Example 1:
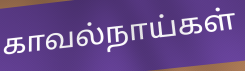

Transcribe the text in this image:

காவல்நாய்கள்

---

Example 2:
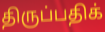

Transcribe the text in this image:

திருப்பதிக்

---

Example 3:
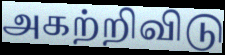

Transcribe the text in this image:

அகற்றிவிடு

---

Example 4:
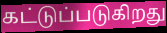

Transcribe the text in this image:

கட்டுப்படுகிறது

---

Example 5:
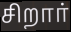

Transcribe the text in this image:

சிறார்